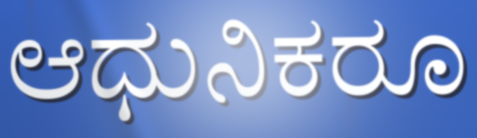
ಆಧುನಿಕರೂ